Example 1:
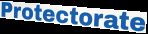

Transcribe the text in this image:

Protectorate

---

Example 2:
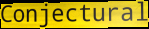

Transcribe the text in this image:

Conjectural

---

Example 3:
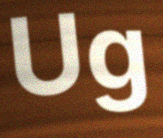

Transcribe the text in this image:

Ug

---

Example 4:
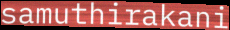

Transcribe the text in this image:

samuthirakani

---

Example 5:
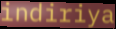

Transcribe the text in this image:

indiriya